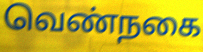
வெண்நகை